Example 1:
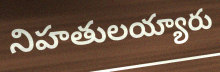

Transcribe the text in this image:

నిహతులయ్యారు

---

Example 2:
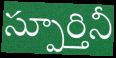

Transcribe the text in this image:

స్పూర్తినీ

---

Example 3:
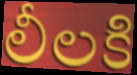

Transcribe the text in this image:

లీలకి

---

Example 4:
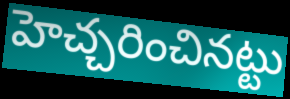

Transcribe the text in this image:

హెచ్చరించినట్టు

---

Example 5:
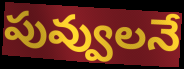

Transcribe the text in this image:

పువ్వులనే